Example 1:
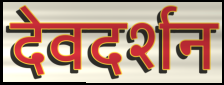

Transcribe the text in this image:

देवदर्शन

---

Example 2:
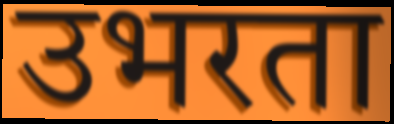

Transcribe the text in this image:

उभरता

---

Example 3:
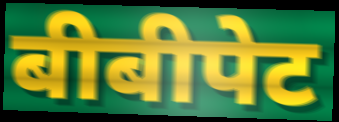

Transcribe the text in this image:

बीबीपेट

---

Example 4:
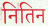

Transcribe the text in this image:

नितिन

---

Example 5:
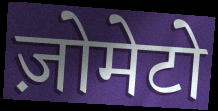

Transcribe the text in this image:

ज़ोमेटो